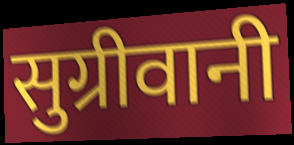
सुग्रीवानी